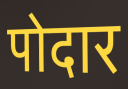
पोदार